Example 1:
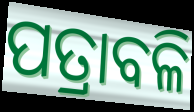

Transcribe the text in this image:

ପତ୍ରାବଳି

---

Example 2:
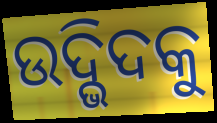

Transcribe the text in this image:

ଉଦ୍ଭିଦକୁ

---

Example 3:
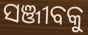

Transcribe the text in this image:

ସଞ୍ଜୀବକୁ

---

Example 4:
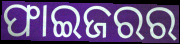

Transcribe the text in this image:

ଫାଇଜରର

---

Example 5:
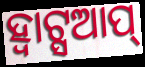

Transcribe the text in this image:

ହ୍ବାଟ୍ସଆପ୍